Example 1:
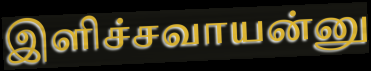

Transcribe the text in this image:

இளிச்சவாயன்னு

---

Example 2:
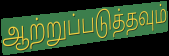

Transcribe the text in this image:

ஆற்றுப்படுத்தவும்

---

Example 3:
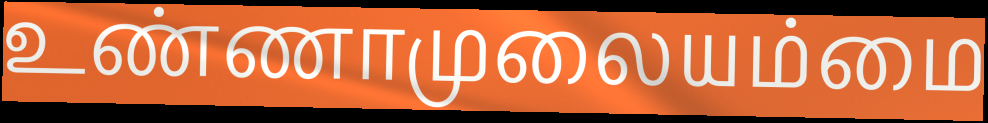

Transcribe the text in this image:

உண்ணாமுலையம்மை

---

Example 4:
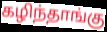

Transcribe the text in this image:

கழிந்தாங்கு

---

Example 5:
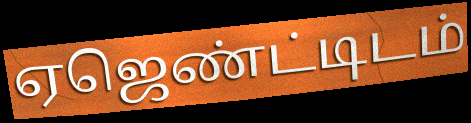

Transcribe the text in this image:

ஏஜெண்ட்டிடம்